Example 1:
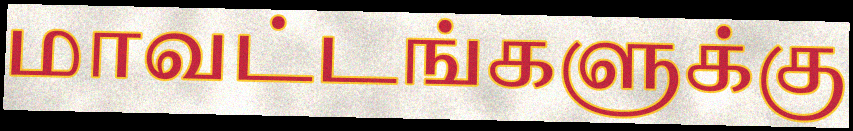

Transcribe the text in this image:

மாவட்டங்களுக்கு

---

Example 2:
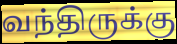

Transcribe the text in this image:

வந்திருக்கு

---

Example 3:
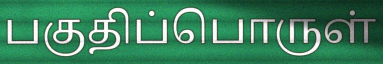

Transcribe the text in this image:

பகுதிப்பொருள்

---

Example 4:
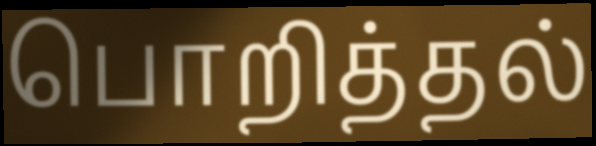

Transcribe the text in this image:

பொறித்தல்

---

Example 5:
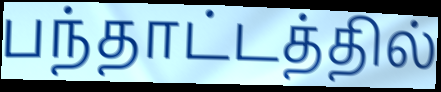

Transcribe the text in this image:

பந்தாட்டத்தில்